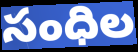
సంధిల